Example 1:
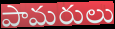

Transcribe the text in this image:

పామరులు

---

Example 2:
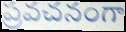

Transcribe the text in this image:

ప్రవచనంగా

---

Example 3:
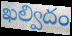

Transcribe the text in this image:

ఖల్విదం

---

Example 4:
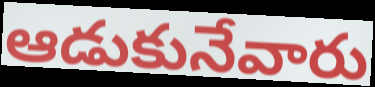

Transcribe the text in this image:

ఆడుకునేవారు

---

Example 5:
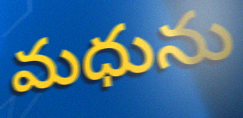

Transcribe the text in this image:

మధును